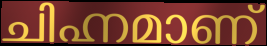
ചിഹ്നമാണ്